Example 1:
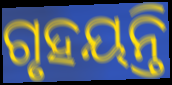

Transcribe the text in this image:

ଗୃହୟନ୍ତି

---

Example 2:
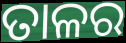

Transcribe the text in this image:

ତାଳର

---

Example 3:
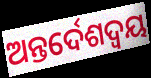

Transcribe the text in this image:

ଅନ୍ତର୍ଦେଶଦ୍ଵୟ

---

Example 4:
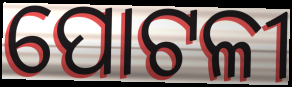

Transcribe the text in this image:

ପୋଟଳୀ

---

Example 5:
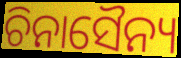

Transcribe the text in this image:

ଚିନାସୈନ୍ୟ